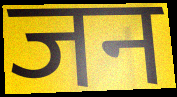
जन